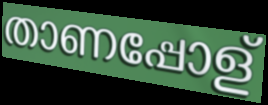
താണപ്പോള്